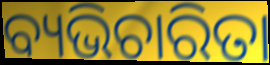
ବ୍ୟଭିଚାରିତା